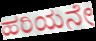
ಹರಿಯನೇ